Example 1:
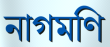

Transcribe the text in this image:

নাগমণি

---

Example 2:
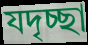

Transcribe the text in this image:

যদৃচ্ছা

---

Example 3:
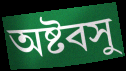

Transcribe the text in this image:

অষ্টবসু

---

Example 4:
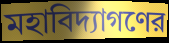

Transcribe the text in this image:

মহাবিদ্যাগণের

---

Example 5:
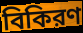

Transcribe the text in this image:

বিকিরণ